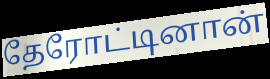
தேரோட்டினான்